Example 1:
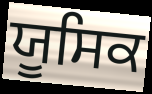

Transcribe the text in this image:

ਯੂਸਿਕ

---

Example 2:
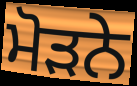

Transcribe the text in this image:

ਮੋੜਨੇ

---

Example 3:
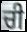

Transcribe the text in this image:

ਚੀ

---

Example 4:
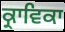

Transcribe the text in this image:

ਕ੍ਰਾਵਿਕਾ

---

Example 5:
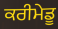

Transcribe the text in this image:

ਕਰੀਮੇਡੂ